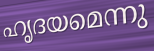
ഹൃദയമെന്നു